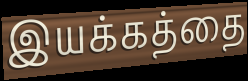
இயக்கத்தை